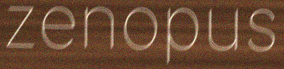
zenopus